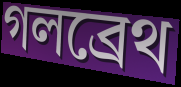
গলব্রেথ